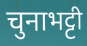
चुनाभट्टी